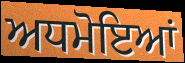
ਅਧਮੋਇਆਂ